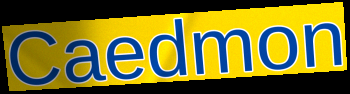
Caedmon